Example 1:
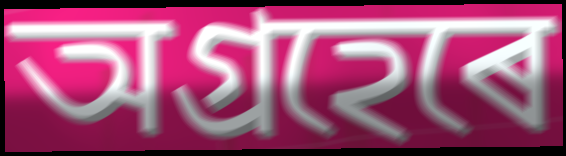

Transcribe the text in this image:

অগ্ৰহেৰে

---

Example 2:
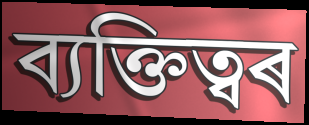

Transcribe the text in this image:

ব্যক্তিত্বৰ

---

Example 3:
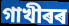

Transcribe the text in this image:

গাখীৰৰ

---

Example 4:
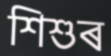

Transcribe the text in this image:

শিশুৰ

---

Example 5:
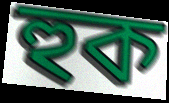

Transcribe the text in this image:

হুক